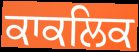
ਕਾਕਲਿਕ